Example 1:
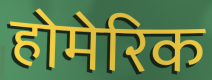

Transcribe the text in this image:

होमेरिक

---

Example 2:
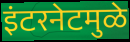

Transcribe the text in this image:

इंटरनेटमुळे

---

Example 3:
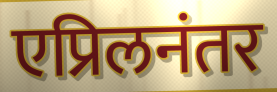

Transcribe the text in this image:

एप्रिलनंतर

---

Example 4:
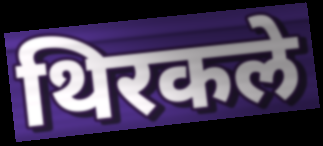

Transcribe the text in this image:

थिरकले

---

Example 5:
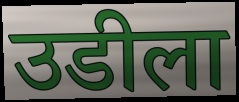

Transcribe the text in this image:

उडीला